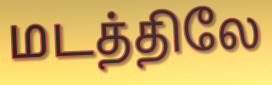
மடத்திலே